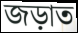
জড়াত